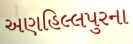
અણહિલ્લપુરના